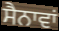
ਸੈਨਾਵਾਂ